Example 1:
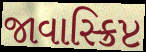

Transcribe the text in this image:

જાવાસ્ક્રિપ્ટ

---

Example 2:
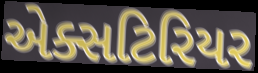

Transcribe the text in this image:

એક્સટિરિયર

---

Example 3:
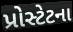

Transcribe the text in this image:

પ્રોસ્ટેટના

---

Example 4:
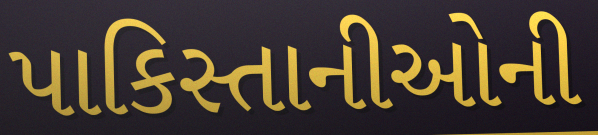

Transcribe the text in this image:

પાકિસ્તાનીઓની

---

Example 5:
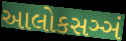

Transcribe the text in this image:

આલોકસઞ્ઞં